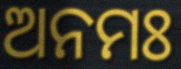
ଅନମଃ